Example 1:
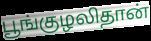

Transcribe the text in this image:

பூங்குழலிதான்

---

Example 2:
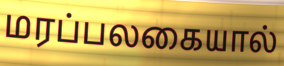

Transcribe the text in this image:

மரப்பலகையால்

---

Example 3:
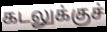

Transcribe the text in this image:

கடலுக்குச்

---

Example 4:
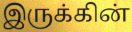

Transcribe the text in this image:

இருக்கின்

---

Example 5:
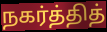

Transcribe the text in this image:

நகர்த்தித்